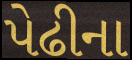
પેઢીના